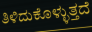
ತಿಳಿದುಕೊಳ್ಳುತ್ತದೆ